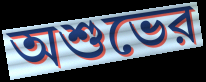
অশুভের